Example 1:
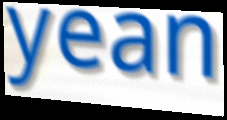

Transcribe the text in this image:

yean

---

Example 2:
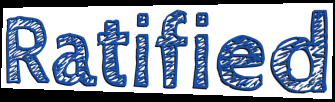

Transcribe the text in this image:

Ratified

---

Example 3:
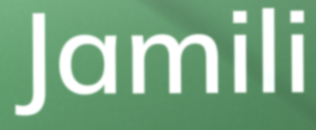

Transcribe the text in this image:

Jamili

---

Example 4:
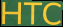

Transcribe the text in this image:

HTC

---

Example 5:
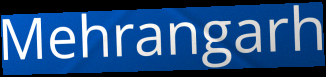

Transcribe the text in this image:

Mehrangarh